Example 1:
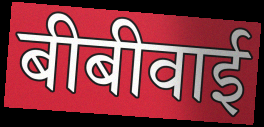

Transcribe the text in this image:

बीबीवाई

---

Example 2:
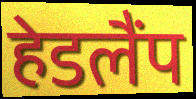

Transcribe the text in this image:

हेडलैंप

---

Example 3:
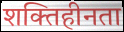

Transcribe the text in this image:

शक्तिहीनता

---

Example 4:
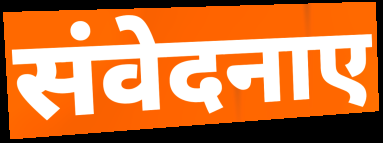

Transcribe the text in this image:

संवेदनाए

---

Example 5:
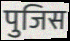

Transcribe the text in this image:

पुजिस